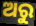
ଅରୁ